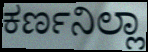
ಕರ್ಣನಿಲ್ಲಾ